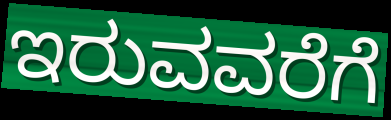
ಇರುವವರೆಗೆ